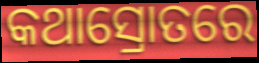
କଥାସ୍ରୋତରେ